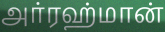
அர்ரஹ்மான்